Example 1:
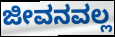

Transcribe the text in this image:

ಜೀವನವಲ್ಲ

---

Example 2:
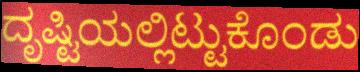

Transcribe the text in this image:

ದೃಷ್ಟಿಯಲ್ಲಿಟ್ಟುಕೊಂಡು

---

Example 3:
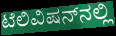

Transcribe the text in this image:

ಟೆಲಿವಿಷನ್‌ನಲ್ಲಿ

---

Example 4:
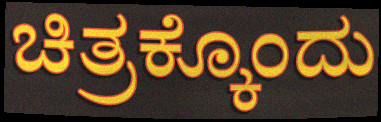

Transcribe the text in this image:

ಚಿತ್ರಕ್ಕೊಂದು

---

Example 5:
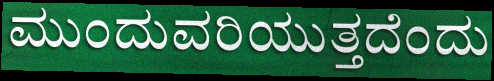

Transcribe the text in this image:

ಮುಂದುವರಿಯುತ್ತದೆಂದು